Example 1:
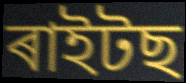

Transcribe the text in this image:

ৰাইটছ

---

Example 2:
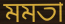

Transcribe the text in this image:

মমতা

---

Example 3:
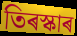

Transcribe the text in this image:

তিৰস্কাৰ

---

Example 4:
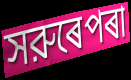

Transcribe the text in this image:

সৰুৰেপৰা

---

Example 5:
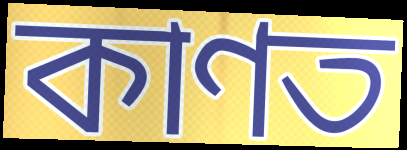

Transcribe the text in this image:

কাণত